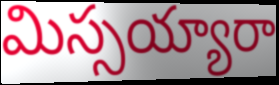
మిస్సయ్యారా